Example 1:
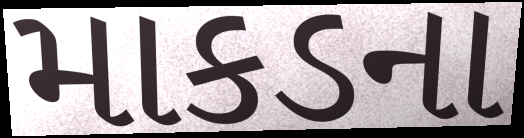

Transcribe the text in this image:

માકડના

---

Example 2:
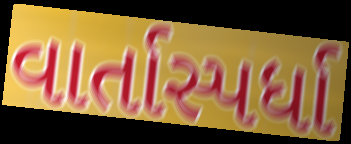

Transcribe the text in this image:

વાર્તાસ્પર્ધા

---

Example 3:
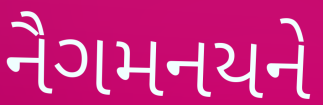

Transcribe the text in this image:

નૈગમનયને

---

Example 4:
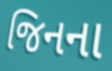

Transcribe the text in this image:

જિનના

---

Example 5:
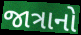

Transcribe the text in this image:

જાત્રાનો